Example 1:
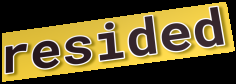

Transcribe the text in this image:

resided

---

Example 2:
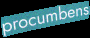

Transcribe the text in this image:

procumbens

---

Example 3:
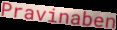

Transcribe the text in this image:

Pravinaben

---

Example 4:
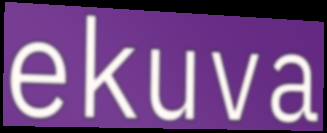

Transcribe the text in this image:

ekuva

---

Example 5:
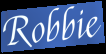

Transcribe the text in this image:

Robbie